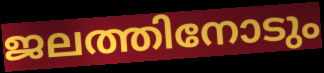
ജലത്തിനോടും